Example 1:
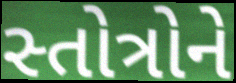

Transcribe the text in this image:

સ્તોત્રોને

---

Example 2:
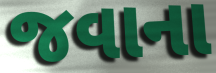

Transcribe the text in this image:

જવાના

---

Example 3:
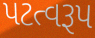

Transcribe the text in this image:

પટત્વરૂપ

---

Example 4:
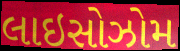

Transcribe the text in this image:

લાઇસોઝોમ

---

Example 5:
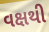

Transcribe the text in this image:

વક્ષથી